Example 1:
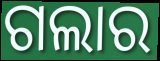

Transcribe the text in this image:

ଗଲାର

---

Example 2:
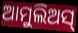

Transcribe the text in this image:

ଆମୁଲିଅସ୍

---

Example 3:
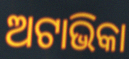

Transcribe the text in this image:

ଅଟାଭିକା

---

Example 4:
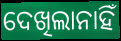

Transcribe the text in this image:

ଦେଖିଲାନାହିଁ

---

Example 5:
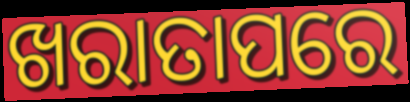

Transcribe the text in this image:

ଖରାତାପରେ